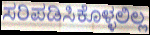
ಸರಿಪಡಿಸಿಕೊಳ್ಳಲಿಲ್ಲ